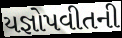
યજ્ઞોપવીતની